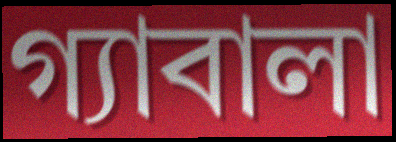
গ্যাবালা